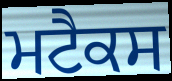
ਮਟੈਕਸ